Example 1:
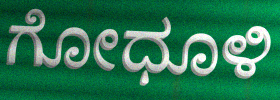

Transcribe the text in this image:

ಗೋಧೂಳಿ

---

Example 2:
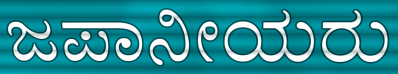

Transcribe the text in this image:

ಜಪಾನೀಯರು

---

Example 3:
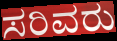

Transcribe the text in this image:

ಸರಿವರು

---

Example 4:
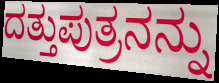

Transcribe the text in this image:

ದತ್ತುಪುತ್ರನನ್ನು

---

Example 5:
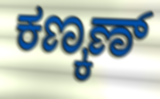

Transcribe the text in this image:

ಕಣ್ಕಣ್